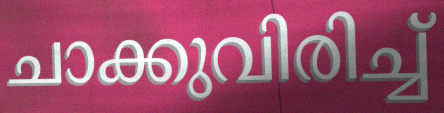
ചാക്കുവിരിച്ച്